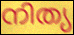
നിത്യ